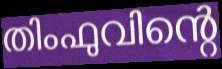
തിംഫുവിന്റെ